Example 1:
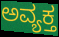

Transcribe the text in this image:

ಅವ್ಯಕ್ತ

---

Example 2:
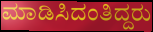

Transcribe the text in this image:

ಮಾಡಿಸಿದಂತಿದ್ದರು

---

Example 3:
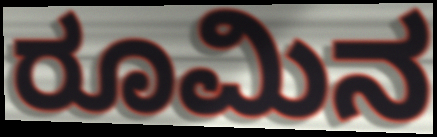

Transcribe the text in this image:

ರೂಮಿನ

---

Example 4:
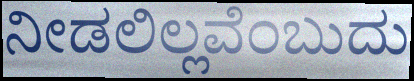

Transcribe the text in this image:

ನೀಡಲಿಲ್ಲವೆಂಬುದು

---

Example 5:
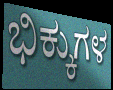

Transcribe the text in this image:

ಭಿಕ್ಕುಗಳ